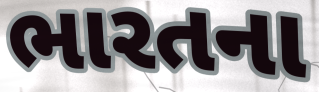
ભારતના